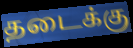
தடைக்கு